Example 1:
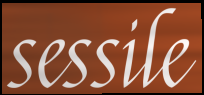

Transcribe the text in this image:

sessile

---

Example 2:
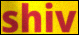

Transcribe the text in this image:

shiv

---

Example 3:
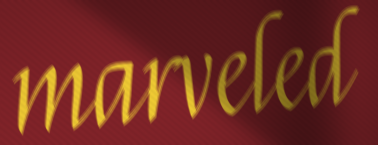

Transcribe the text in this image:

marveled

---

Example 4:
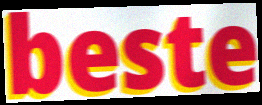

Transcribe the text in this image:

beste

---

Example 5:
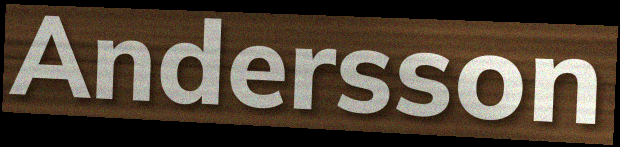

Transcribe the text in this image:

Andersson